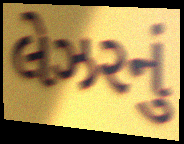
લેઝરનું